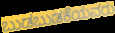
ಬುಡಬುಡಕೆಯವರು